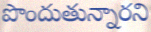
పొందుతున్నారని